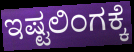
ಇಷ್ಟಲಿಂಗಕ್ಕೆ